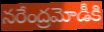
నరేంద్రమోడీకి